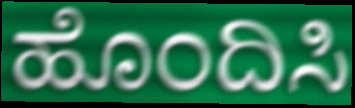
ಹೊಂದಿಸಿ